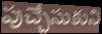
పుచ్చేసుకుని